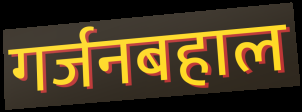
गर्जनबहाल